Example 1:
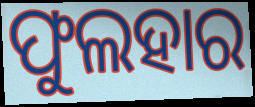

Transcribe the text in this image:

ଫୁଲହାର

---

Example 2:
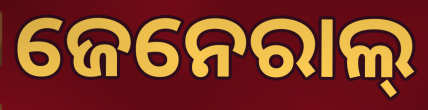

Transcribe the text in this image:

ଜେନେରାଲ୍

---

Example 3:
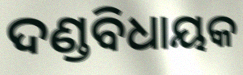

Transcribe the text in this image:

ଦଣ୍ଡବିଧାୟକ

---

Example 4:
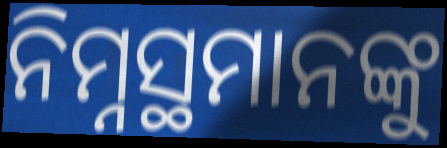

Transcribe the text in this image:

ନିମ୍ନସ୍ଥମାନଙ୍କୁ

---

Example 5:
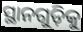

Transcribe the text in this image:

ସ୍ଥାନଗୁଡ଼ିକୁ